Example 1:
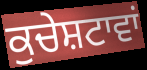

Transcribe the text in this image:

ਕੁਚੇਸ਼ਟਾਵਾਂ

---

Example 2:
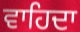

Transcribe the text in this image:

ਵਾਹਿਦਾ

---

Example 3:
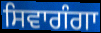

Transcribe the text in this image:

ਸਿਵਾਗੰਗਾ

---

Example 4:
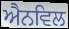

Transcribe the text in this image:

ਐਨਵਿਲ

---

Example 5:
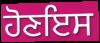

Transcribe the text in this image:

ਹੋਣਇਸ